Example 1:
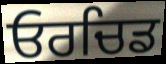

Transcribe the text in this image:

ਓਰਚਿਡ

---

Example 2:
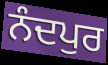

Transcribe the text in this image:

ਨੰਦਪੁਰ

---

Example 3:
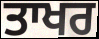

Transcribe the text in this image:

ਤਾਖਰ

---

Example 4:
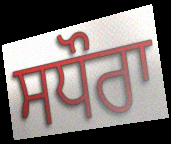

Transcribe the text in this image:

ਸਧੌਰਾ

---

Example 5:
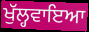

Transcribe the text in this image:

ਖੁੱਲ੍ਹਵਾਇਆ